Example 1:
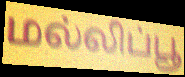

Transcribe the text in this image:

மல்லிப்பூ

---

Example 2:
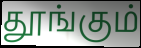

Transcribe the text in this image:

தூங்கும்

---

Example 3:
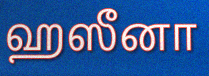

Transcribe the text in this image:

ஹஸீனா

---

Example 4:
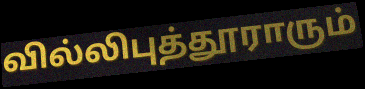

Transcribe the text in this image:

வில்லிபுத்தூராரும்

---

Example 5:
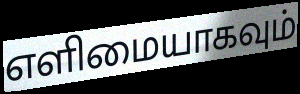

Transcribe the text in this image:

எளிமையாகவும்